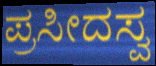
ಪ್ರಸೀದಸ್ವ